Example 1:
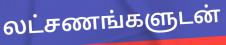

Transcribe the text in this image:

லட்சணங்களுடன்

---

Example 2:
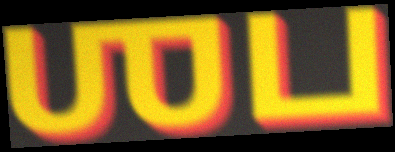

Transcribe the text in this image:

ஶப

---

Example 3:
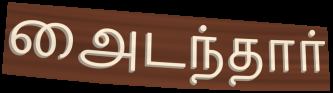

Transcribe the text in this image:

அைடந்தார்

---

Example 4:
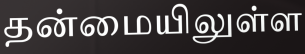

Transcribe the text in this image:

தன்மையிலுள்ள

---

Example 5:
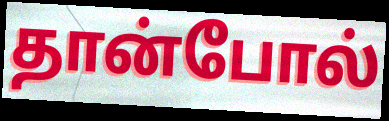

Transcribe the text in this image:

தான்போல்